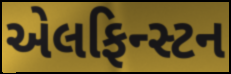
એલફિન્સ્ટન